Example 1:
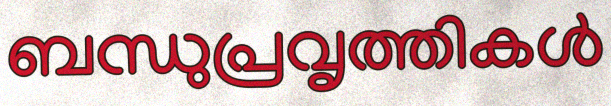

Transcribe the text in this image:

ബന്ധുപ്രവൃത്തികൾ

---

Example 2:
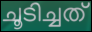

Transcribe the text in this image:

ചൂടിച്ചത്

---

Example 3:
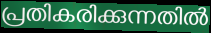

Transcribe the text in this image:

പ്രതികരിക്കുന്നതിൽ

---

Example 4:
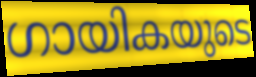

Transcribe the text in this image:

ഗായികയുടെ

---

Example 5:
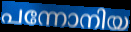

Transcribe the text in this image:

പന്നോനിയ